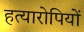
हत्‍यारोपियों